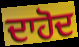
ਦਾਹੋਦ